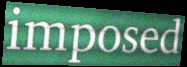
imposed